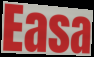
Easa